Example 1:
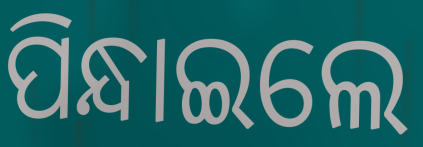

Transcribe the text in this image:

ପିନ୍ଧାଇଲେ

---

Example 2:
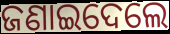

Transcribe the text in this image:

ଜଣାଇଦେଲେ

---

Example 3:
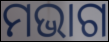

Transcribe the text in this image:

ମଭାଗ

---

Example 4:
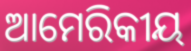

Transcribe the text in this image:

ଆମେରିକୀୟ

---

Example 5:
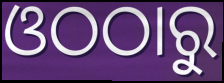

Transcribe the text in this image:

ଓଠଠାରୁ